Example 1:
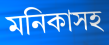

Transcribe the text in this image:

মনিকাসহ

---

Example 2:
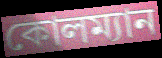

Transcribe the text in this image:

কোলম্যান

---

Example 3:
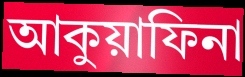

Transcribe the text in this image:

আকুয়াফিনা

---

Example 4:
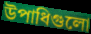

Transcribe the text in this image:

উপাধিগুলো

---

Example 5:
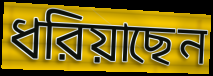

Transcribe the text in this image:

ধরিয়াছেন